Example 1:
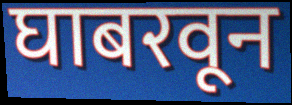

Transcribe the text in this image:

घाबरवून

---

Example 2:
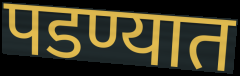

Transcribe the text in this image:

पडण्यात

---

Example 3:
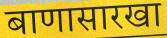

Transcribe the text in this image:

बाणासारखा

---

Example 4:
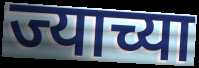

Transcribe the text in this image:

ज्याच्या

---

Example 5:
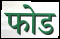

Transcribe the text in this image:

फोड